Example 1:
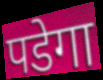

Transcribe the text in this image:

पडेगा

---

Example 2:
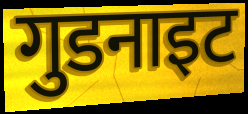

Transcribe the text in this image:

गुडनाइट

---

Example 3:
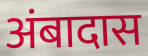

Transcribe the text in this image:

अंबादास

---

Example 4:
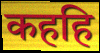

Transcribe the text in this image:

कहहि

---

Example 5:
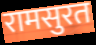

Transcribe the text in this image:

रामसुरत